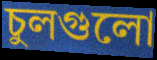
চুলগুলো